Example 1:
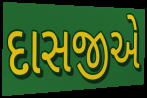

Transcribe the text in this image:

દાસજીએ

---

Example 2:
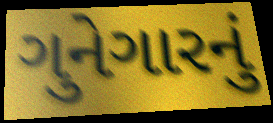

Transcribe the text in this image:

ગુનેગારનું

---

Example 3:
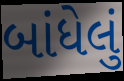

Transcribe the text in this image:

બાંધેલું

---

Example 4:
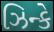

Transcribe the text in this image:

ઝિન્કે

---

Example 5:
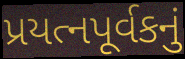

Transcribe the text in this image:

પ્રયત્નપૂર્વકનું